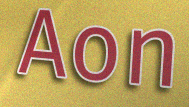
Aon